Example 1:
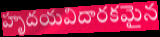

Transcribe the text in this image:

హృదయవిదారకమైన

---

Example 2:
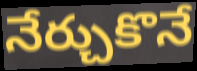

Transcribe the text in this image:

నేర్చుకొనే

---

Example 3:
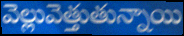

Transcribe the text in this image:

వెల్లువెత్తుతున్నాయి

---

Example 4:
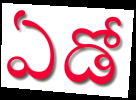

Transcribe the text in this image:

ఏడో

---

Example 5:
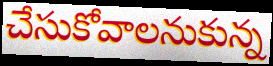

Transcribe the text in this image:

చేసుకోవాలనుకున్న